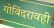
गोविंदरावही